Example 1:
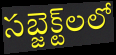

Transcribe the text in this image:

సబ్జెక్ట్‌లలో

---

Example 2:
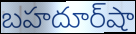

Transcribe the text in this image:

బహదూర్‌షా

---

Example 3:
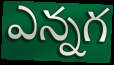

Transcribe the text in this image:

ఎన్నగ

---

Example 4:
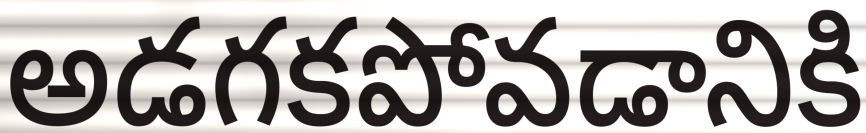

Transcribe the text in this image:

అడగకపోవడానికి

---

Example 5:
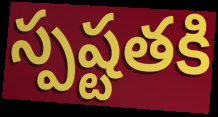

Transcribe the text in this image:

స్పష్టతకి